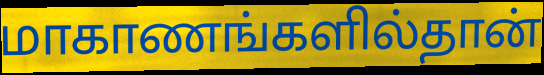
மாகாணங்களில்தான்